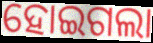
ହୋଇଗଲା